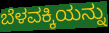
ಬೆಳವಕ್ಕಿಯನ್ನು